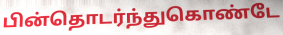
பின்தொடர்ந்துகொண்டே